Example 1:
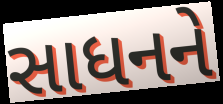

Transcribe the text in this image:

સાધનને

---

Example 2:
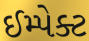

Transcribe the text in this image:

ઈમ્પેક્ટ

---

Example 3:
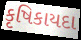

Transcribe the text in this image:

કૃષિકાયદા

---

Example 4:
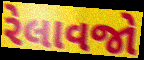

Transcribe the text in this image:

રેલાવજો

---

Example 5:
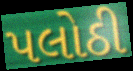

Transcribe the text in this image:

પલોઠી